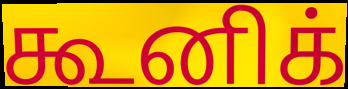
கூனிக்